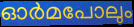
ഓർമപോലും